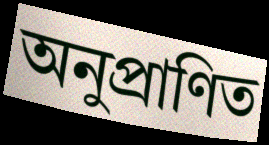
অনুপ্ৰাণিত